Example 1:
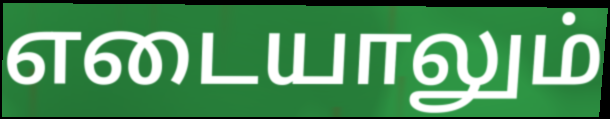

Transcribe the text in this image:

எடையாலும்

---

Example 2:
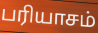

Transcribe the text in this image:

பரியாசம்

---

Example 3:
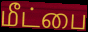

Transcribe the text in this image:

மீட்பை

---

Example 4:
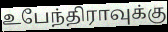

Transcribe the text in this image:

உபேந்திராவுக்கு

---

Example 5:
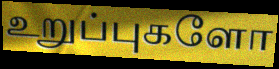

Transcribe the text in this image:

உறுப்புகளோ